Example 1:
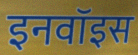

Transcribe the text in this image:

इनवॉइस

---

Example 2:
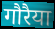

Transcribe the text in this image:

गौरैया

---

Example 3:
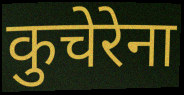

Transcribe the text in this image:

कुचेरेना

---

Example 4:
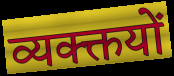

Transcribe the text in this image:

व्यक्क्तयों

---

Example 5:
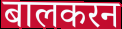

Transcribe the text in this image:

बालकरन